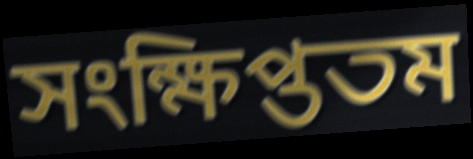
সংক্ষিপ্ততম